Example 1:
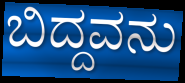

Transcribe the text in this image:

ಬಿದ್ದವನು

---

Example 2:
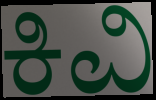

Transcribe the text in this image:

ಕಿವಿ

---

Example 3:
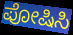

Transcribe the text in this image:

ಪೋಷಿಸಿ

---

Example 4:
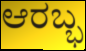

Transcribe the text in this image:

ಆರಬ್ಭ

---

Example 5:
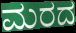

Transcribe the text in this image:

ಮರದ